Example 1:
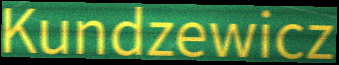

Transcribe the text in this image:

Kundzewicz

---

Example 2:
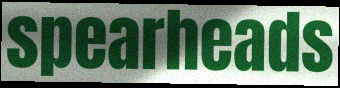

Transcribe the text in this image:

spearheads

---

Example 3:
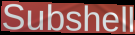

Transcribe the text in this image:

Subshell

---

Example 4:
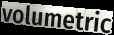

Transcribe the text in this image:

volumetric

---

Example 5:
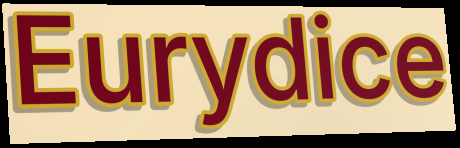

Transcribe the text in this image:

Eurydice